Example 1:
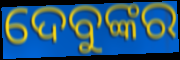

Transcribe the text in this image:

ଦେବୁଙ୍କର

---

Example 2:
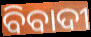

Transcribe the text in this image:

ବିବାଦୀ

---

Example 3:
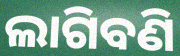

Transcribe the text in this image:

ଲାଗିବଣି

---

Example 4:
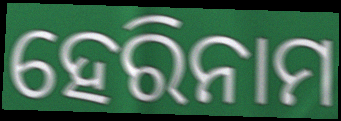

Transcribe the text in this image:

ହେରିନାମ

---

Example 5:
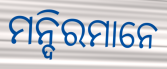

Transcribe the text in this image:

ମନ୍ଦିରମାନେ